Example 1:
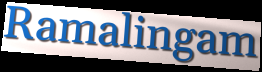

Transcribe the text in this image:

Ramalingam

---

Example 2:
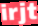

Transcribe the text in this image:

irjt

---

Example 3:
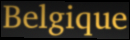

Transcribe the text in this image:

Belgique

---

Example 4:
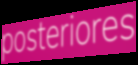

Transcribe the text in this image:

posteriores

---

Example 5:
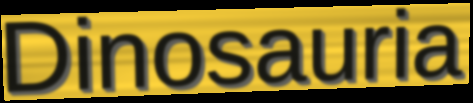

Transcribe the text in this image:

Dinosauria